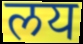
लय